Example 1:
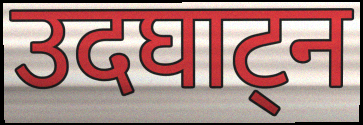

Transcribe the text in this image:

उदघाट्न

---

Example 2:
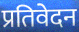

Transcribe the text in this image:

प्रतिवेदन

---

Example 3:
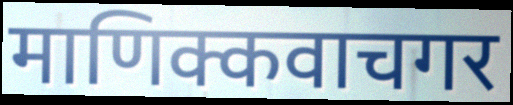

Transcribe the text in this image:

माणिक्कवाचगर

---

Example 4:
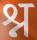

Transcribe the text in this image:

श्न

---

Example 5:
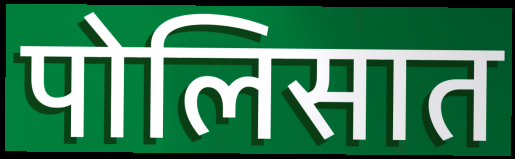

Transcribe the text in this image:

पोलिसात